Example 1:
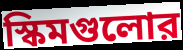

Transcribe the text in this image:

স্কিমগুলোর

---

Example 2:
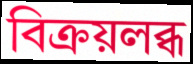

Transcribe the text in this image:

বিক্রয়লব্ধ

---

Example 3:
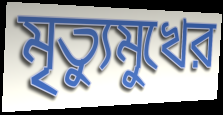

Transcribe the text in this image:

মৃত্যুমুখের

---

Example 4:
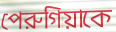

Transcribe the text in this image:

পেরুগিয়াকে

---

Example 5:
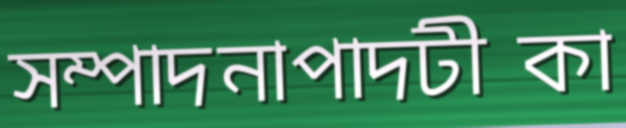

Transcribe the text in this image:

সম্পাদনাপাদটীকা